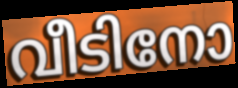
വീടിനോ